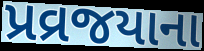
પ્રવ્રજયાના